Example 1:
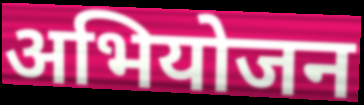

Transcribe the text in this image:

अभियोजन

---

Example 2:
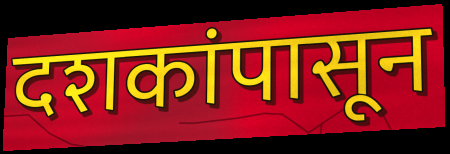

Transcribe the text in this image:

दशकांपासून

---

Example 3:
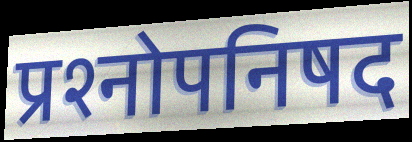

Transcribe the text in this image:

प्रश्नोपनिषद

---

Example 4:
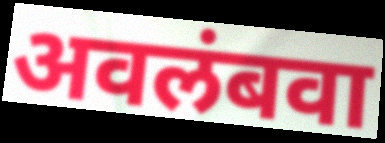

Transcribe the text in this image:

अवलंबवा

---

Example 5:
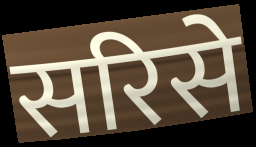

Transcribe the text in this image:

सरिसे